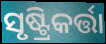
ସୃଷ୍ଟ୍ରିକର୍ତ୍ତା